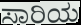
ಸಾರಿಯ